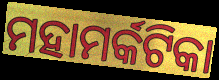
ମହାମର୍କଟିକା